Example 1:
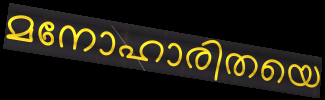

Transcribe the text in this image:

മനോഹാരിതയെ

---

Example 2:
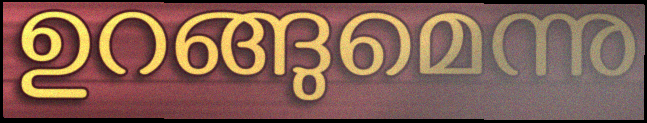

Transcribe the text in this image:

ഉറങ്ങുമെന്നു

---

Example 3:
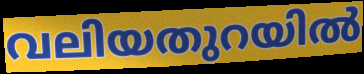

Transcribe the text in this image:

വലിയതുറയിൽ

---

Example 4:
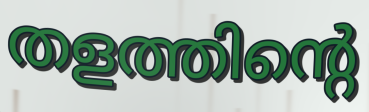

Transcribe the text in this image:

തളത്തിന്റെ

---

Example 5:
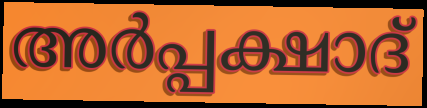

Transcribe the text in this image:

അർപ്പക്ഷാദ്